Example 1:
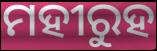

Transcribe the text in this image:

ମହୀରୁହ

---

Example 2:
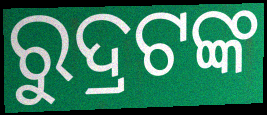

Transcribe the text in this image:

ରୁଦ୍ରଟଙ୍କ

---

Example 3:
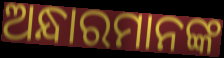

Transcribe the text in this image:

ଅନ୍ଧାରମାନଙ୍କ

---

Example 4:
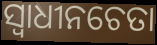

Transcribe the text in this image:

ସ୍ବାଧୀନଚେତା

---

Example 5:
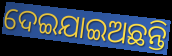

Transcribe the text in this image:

ଦେଇଯାଇଅଛନ୍ତି